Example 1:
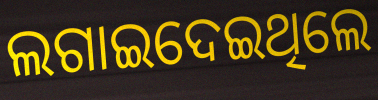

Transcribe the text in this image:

ଲଗାଇଦେଇଥିଲେ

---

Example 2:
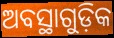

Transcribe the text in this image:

ଅବସ୍ଥାଗୁଡ଼ିକ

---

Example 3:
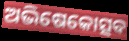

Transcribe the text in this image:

ଅଭିଷେକୋତ୍ସବ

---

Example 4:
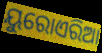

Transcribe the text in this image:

ୟୁରୋଏରିଆ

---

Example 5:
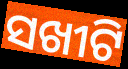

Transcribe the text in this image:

ସଖୀଟି